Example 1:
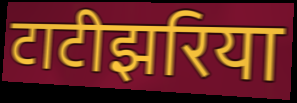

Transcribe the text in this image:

टाटीझरिया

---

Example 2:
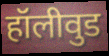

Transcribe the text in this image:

हॉलीवुड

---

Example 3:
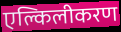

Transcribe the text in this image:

एल्किलीकरण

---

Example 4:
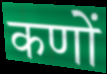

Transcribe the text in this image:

कणों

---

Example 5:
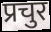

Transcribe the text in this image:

प्रचुर